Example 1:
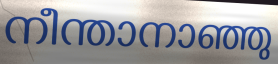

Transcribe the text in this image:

നീന്താനാഞ്ഞു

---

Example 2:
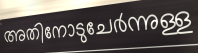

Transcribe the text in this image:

അതിനോടുചേർന്നുള്ള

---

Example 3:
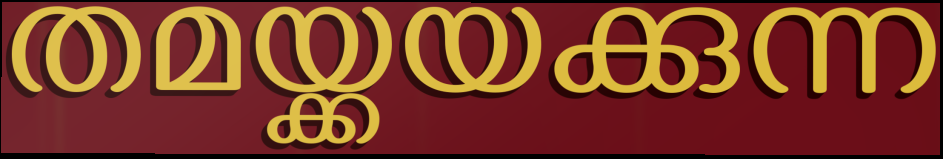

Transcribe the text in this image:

തമയ്ക്കയക്കുന്ന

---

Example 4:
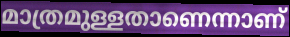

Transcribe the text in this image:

മാത്രമുള്ളതാണെന്നാണ്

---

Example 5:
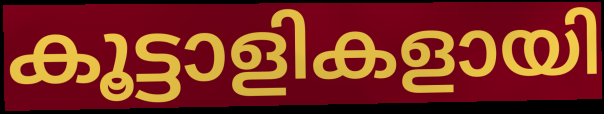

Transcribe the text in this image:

കൂട്ടാളികളായി